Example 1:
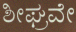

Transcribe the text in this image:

ಶೀಘ್ರವೇ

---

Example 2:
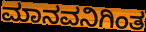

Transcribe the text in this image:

ಮಾನವನಿಗಿಂತ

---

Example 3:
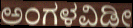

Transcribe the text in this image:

ಅಂಗಳವಿಡೀ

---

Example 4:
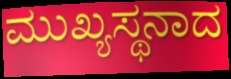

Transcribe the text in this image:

ಮುಖ್ಯಸ್ಥನಾದ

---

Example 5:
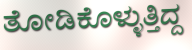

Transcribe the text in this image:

ತೋಡಿಕೊಳ್ಳುತ್ತಿದ್ದ